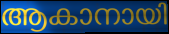
ആകാനായി